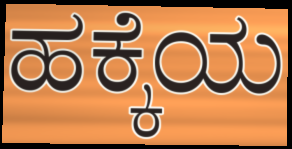
ಹಕ್ಕೆಯ